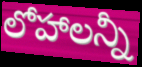
లోహాలన్నీ